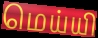
மெய்யி